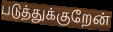
படுத்துக்குறேன்